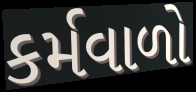
કર્મવાળો